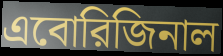
এবোরিজিনাল